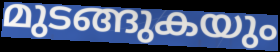
മുടങ്ങുകയും